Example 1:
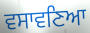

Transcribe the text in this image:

ਵਸਾਵਣਿਆ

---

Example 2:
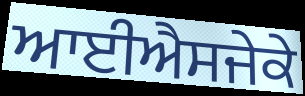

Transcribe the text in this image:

ਆਈਐਸਜੇਕੇ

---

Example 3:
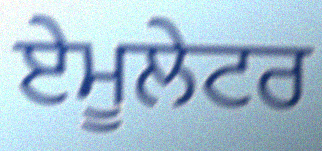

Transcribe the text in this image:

ਏਮੂਲੇਟਰ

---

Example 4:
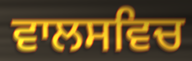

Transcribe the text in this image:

ਵਾਲਸਵਿਚ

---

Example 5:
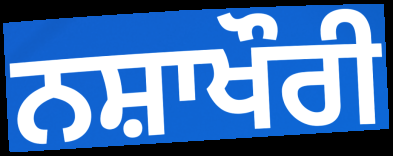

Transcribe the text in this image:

ਨਸ਼ਾਖੌਰੀ